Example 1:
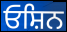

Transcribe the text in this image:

ਓਸ਼ਿਨ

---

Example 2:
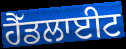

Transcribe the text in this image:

ਹੈੱਡਲਾਈਟ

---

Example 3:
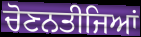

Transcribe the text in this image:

ਚੋਣਨਤੀਜਿਆਂ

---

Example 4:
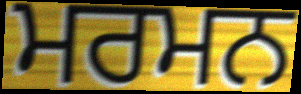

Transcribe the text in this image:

ਮਰਮਨ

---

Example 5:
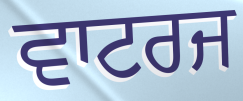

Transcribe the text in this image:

ਵਾਟਰਜ